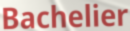
Bachelier